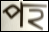
পহ